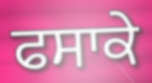
ਫਸਾਕੇ